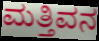
ಮತ್ತಿವನ